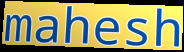
mahesh